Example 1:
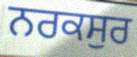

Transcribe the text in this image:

ਨਰਕਸੁਰ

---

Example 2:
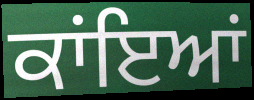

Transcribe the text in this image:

ਕਾਂਇਆਂ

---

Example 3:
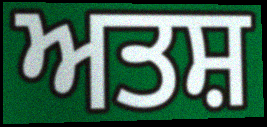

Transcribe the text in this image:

ਅਤਸ਼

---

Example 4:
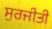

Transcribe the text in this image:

ਸੁਰਜੀਤੀ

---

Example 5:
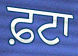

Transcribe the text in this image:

ਫ਼ਟਾ